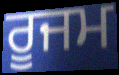
ਰੂਜਮ